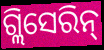
ଗ୍ଲିସେରିନ୍